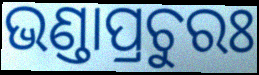
ଭଣ୍ଡାପ୍ରଚୁରଃ